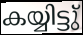
കയ്യിട്ടു്